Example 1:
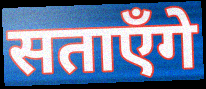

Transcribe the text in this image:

सताएँगे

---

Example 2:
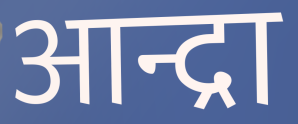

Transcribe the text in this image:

आन्द्रा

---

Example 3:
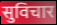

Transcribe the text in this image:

सुविचार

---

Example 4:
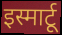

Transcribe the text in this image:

इस्मार्टू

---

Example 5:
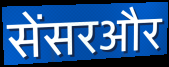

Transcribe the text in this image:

सेंसरऔर